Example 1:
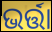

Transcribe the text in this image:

ଭର୍ତ୍ତା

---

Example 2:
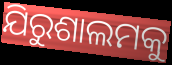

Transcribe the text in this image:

ଯିରୁଶାଲମକୁ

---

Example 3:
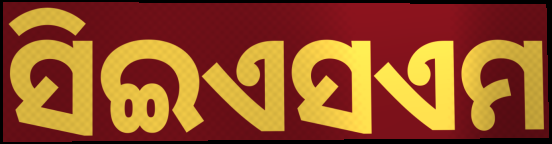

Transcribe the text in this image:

ସିଇଏସଏମ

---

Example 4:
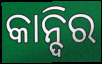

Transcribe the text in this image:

କାନ୍ଦିର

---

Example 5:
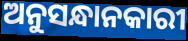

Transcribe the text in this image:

ଅନୁସନ୍ଧାନକାରୀ